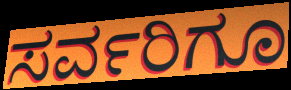
ಸರ್ವರಿಗೂ